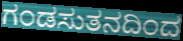
ಗಂಡಸುತನದಿಂದ